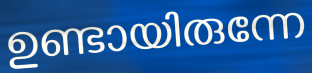
ഉണ്ടായിരുന്നേ